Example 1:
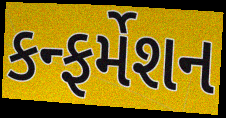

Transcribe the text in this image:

કન્ફર્મેશન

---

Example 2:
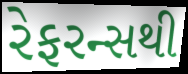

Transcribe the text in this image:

રેફરન્સથી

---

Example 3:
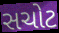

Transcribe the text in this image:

સચોટ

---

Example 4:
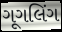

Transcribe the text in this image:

ગૂગલિંગ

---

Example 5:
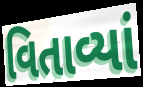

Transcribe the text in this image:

વિતાવ્યાં